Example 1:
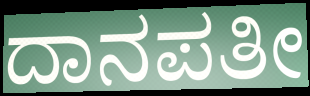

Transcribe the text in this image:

ದಾನಪತೀ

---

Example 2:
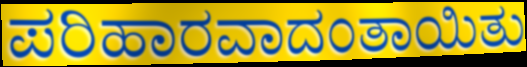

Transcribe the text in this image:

ಪರಿಹಾರವಾದಂತಾಯಿತು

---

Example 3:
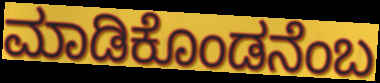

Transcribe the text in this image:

ಮಾಡಿಕೊಂಡನೆಂಬ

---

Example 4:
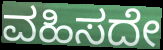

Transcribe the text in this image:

ವಹಿಸದೇ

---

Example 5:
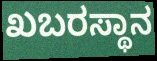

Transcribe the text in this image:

ಖಬರಸ್ಥಾನ